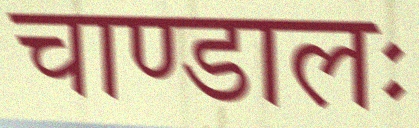
चाण्डालः